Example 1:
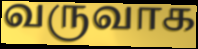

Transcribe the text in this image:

வருவாக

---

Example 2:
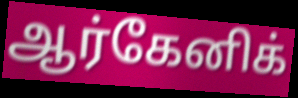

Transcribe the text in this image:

ஆர்கேனிக்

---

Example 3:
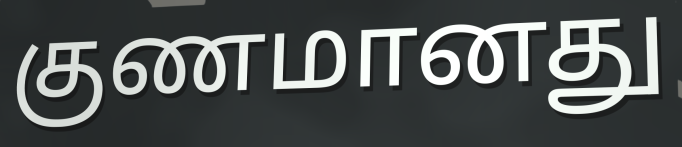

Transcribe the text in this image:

குணமானது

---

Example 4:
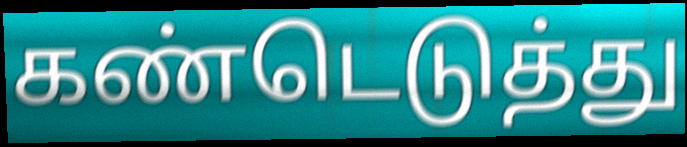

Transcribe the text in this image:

கண்டெடுத்து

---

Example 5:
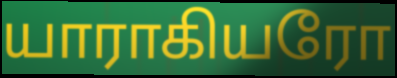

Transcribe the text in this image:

யாராகியரோ